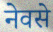
नेवसे